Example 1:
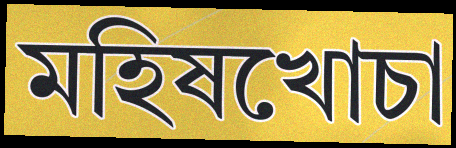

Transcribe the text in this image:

মহিষখোচা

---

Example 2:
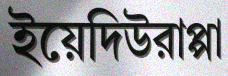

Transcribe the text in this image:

ইয়েদিউরাপ্পা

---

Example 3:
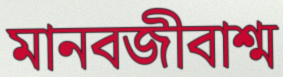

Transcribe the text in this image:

মানবজীবাশ্ম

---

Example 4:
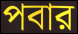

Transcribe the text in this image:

পবার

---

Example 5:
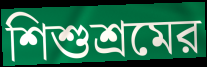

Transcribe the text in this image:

শিশুশ্রমের